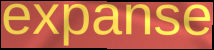
expanse